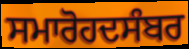
ਸਮਾਰੋਹਦਸੰਬਰ